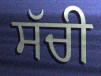
ਸੱਚੀ